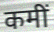
कमीं